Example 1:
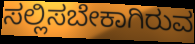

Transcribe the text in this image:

ಸಲ್ಲಿಸಬೇಕಾಗಿರುವ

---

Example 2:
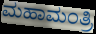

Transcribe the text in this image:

ಮಹಾಮಂತ್ರಿ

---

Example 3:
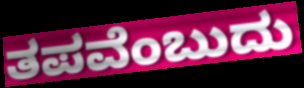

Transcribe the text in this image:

ತಪವೆಂಬುದು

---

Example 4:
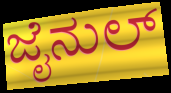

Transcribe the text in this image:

ಜೈನುಲ್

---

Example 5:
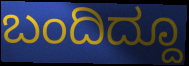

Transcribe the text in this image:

ಬಂದಿದ್ದೂ